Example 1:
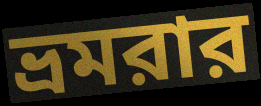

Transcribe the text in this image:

ভ্রমরার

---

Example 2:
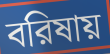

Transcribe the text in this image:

বরিষায়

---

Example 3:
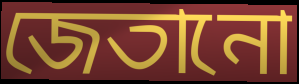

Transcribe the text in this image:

জেতানো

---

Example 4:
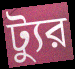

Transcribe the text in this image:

ট্যুর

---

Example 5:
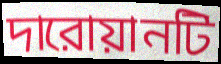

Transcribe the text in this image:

দারোয়ানটি